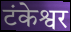
टंकेश्वर